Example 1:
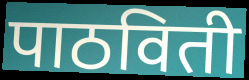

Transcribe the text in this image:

पाठविती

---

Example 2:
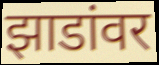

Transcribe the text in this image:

झाडांवर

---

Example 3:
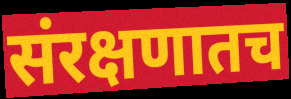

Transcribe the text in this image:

संरक्षणातच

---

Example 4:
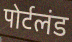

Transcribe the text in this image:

पोर्टलंड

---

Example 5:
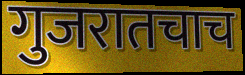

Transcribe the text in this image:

गुजरातचाच